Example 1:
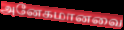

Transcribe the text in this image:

அனேகமானவை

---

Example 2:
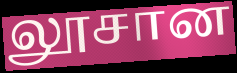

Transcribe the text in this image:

லூசான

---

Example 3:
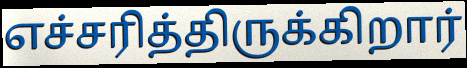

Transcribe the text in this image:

எச்சரித்திருக்கிறார்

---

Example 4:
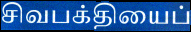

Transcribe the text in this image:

சிவபக்தியைப்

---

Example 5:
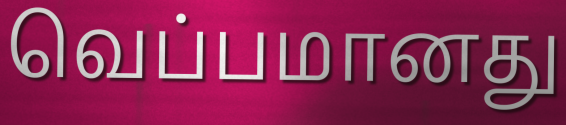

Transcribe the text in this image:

வெப்பமானது